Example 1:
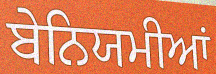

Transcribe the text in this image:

ਬੇਨਿਯਮੀਆਂ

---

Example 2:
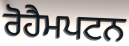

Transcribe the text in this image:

ਰੋਹੈਮਪਟਨ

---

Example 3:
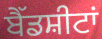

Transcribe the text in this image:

ਬੈੱਡਸ਼ੀਟਾਂ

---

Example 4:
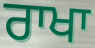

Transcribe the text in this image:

ਰਾਖਾ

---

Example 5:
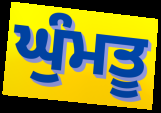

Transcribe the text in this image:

ਘੁੰਮਤੂ